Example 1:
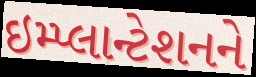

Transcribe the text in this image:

ઇમ્પ્લાન્ટેશનને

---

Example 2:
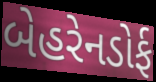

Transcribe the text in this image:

બેહરેનડોર્ફ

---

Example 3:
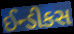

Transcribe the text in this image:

ઈન્ડીકસ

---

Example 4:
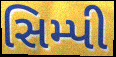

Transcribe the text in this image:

સિમ્પી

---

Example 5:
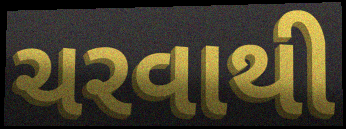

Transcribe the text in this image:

ચરવાથી